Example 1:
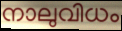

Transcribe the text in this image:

നാലുവിധം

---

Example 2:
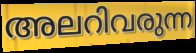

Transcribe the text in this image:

അലറിവരുന്ന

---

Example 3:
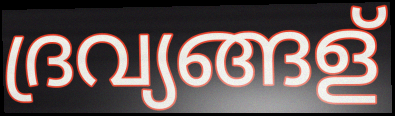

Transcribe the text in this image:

ദ്രവ്യങ്ങള്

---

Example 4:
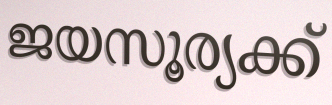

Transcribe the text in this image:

ജയസൂര്യക്ക്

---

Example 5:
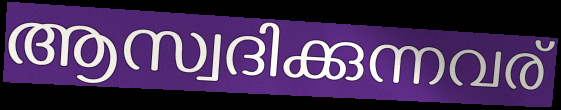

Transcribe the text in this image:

ആസ്വദിക്കുന്നവര്